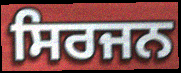
ਸਿਰਜਨ